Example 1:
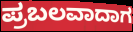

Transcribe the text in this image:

ಪ್ರಬಲವಾದಾಗ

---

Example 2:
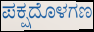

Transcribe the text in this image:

ಪಕ್ಷದೊಳಗಣ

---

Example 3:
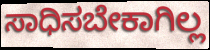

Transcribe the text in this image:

ಸಾಧಿಸಬೇಕಾಗಿಲ್ಲ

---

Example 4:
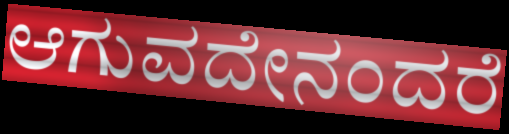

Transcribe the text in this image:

ಆಗುವದೇನಂದರೆ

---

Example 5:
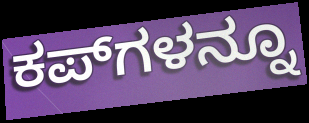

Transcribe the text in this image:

ಕಪ್‌ಗಳನ್ನೂ